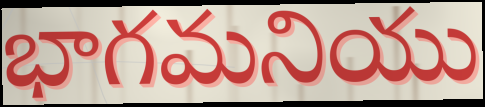
భాగమనియు